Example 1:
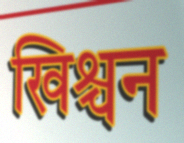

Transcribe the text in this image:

खिश्चन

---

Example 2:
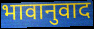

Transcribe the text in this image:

भावानुवाद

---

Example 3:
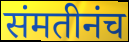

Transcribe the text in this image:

संमतीनंच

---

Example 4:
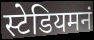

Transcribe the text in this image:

स्टेडियमनं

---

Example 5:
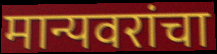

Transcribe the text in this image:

मान्यवरांचा